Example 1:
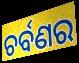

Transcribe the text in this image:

ଚର୍ବଣର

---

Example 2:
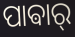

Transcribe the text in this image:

ପାଵାର୍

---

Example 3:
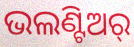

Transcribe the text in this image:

ଭଲଣ୍ଟିଅର୍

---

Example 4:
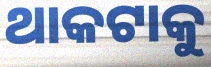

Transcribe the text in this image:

ଥାକଟାକୁ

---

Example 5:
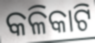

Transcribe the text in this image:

କଳିକାଟି